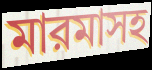
মারমাসহ